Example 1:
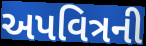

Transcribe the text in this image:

અપવિત્રની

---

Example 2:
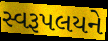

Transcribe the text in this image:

સ્વરૂપલયને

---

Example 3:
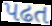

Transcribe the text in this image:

પઢત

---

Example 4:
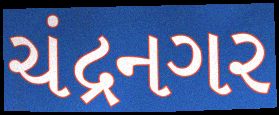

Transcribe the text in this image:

ચંદ્રનગર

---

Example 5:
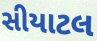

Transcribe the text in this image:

સીયાટલ